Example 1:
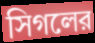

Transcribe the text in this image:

সিগলের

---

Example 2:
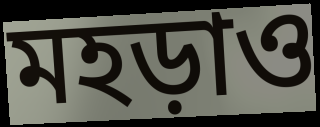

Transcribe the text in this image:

মহড়াও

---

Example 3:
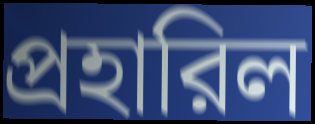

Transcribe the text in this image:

প্রহারিল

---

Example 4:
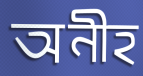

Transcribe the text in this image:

অনীহ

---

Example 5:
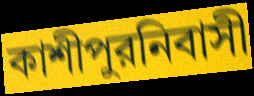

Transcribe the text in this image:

কাশীপুরনিবাসী